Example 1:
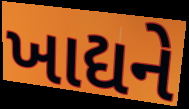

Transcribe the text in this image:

ખાદ્યને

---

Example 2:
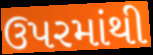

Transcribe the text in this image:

ઉપરમાંથી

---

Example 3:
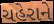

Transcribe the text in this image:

ચહેરાને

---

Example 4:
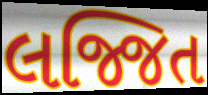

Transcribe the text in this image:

લજ્જિત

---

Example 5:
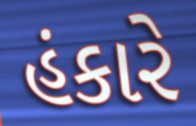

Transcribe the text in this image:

હંકારે